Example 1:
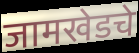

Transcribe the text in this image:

जामखेडचे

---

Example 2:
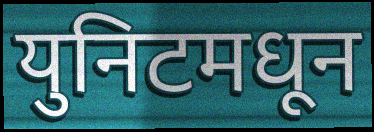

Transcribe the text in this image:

युनिटमधून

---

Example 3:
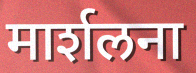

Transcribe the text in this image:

मार्शलना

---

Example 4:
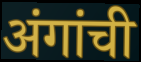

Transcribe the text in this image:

अंगांची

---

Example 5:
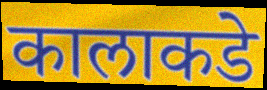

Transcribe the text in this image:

कालाकडे